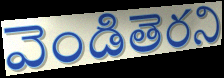
వెండితెరని